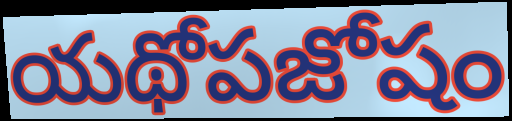
యథోపజోషం